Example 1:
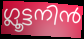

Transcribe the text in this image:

ഗ്ലൂട്ടനിൻ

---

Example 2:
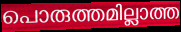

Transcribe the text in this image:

പൊരുത്തമില്ലാത്ത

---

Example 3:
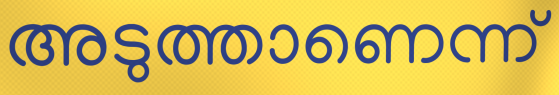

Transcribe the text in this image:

അടുത്താണെന്ന്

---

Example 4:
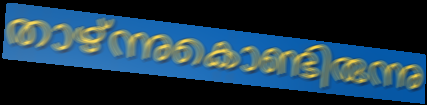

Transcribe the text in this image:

താഴ്ന്നുകൊണ്ടിരുന്നു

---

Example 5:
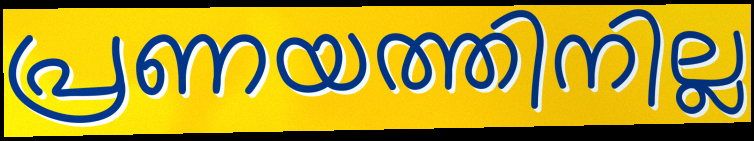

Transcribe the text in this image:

പ്രണയത്തിനില്ല